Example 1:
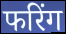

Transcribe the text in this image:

फरिंग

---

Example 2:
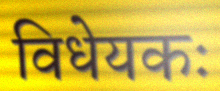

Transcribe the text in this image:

विधेयकः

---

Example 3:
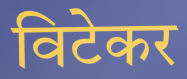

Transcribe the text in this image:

विटेकर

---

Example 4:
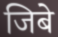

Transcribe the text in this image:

जिबे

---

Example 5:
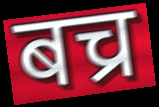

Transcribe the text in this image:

बच्र